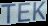
TEK